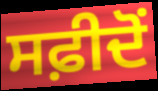
ਸਫ਼ੀਦੋਂ